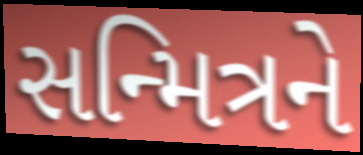
સન્મિત્રને